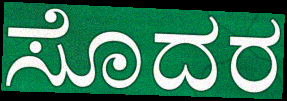
ಸೊದರ